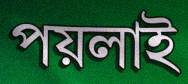
পয়লাই